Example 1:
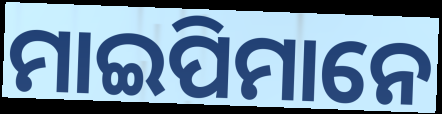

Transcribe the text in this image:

ମାଇପିମାନେ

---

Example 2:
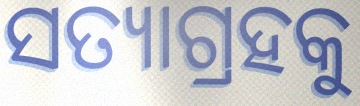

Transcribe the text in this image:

ସତ୍ୟାଗ୍ରହକୁ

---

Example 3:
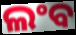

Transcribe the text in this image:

ଲଂବ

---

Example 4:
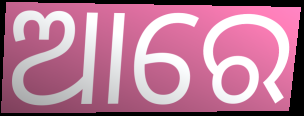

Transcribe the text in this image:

ଆରେ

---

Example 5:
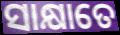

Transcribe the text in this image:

ସାକ୍ଷାତେ